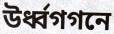
উর্ধ্বগগনে